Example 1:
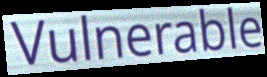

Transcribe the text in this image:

Vulnerable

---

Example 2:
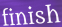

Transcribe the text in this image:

finish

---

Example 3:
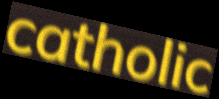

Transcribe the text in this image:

catholic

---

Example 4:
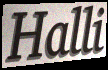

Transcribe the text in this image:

Halli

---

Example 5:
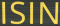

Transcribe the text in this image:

ISIN